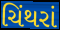
ચિંથરાં